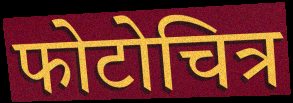
फोटोचित्र